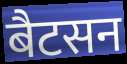
बैटसन